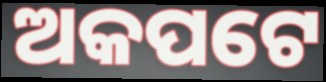
ଅକପଟେ